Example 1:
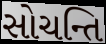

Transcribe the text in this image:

સોચન્તિ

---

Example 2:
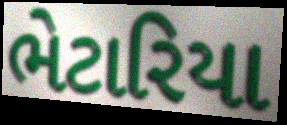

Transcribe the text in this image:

ભેટારિયા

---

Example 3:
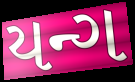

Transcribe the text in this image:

યન્ગ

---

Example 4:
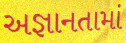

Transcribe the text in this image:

અજ્ઞાનતામાં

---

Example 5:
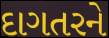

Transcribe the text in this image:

દાગતરને